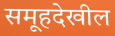
समूहदेखील